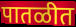
पातळीत